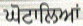
ਘੋਟਾਲਿਆਂ